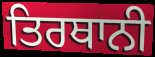
ਤਿਰਥਾਨੀ